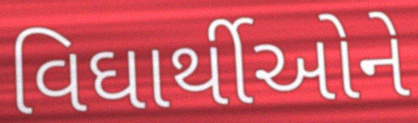
વિઘાર્થીઓને